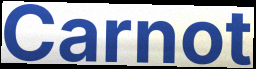
Carnot